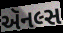
ઍનલ્સ